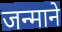
जन्माने